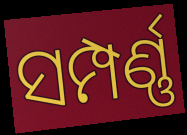
ସମ୍ପର୍ଣ୍ଣ